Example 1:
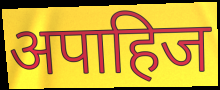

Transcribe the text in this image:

अपाहिज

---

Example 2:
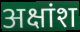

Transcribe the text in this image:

अक्षांश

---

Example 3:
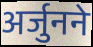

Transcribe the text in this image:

अर्जुनने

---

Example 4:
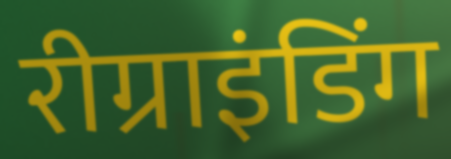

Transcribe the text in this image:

रीग्राइंडिंग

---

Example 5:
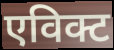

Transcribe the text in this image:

एविक्ट